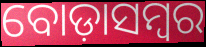
ବୋଡ଼ାସମ୍ବର